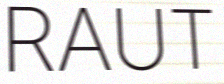
RAUT